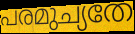
പരമുച്യതേ